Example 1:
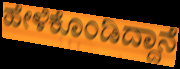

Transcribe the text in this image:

ಹೇಳಿಕೊಂಡಿದ್ದಾನೆ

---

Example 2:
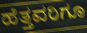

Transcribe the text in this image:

ಹೆತ್ತವರಿಗೂ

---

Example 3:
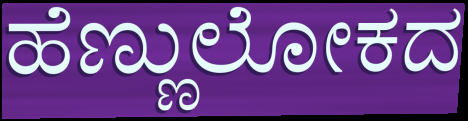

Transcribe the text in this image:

ಹೆಣ್ಣುಲೋಕದ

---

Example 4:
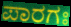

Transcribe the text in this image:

ಪಾರಗಃ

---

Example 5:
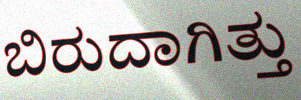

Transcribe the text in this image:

ಬಿರುದಾಗಿತ್ತು